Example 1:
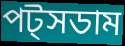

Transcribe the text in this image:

পট্‌সডাম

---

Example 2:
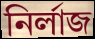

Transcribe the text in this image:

নির্লাজ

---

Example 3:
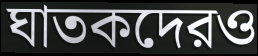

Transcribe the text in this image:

ঘাতকদেরও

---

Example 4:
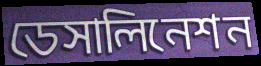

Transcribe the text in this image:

ডেসালিনেশন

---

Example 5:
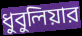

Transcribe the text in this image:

ধুবুলিয়ার